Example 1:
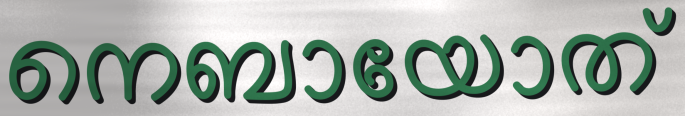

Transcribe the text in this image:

നെബായോത്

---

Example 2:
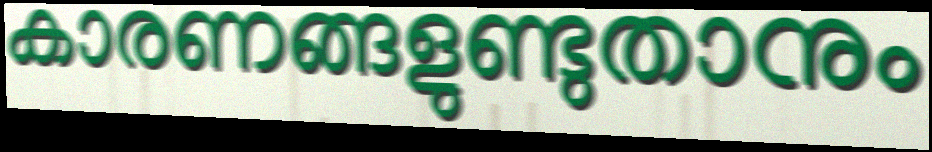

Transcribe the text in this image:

കാരണങ്ങളുണ്ടുതാനും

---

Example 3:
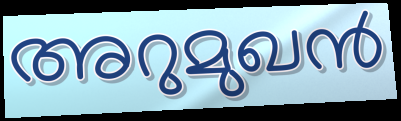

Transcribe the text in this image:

അറുമുഖൻ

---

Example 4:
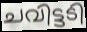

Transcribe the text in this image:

ചവിട്ടടി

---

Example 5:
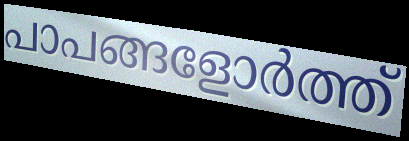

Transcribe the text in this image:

പാപങ്ങളോർത്ത്